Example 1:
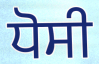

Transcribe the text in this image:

ਧੋਸੀ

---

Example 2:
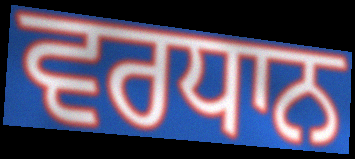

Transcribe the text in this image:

ਵਰਧਾਨ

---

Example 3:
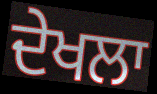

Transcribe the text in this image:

ਦੇਖਲਾ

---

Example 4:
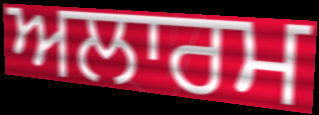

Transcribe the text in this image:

ਅਲਾਰਮ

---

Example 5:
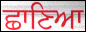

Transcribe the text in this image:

ਛਾਣਿਆ